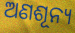
ଅଣଶୂନ୍ୟ